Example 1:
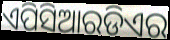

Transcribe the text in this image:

ଏପିସିଆରଡିଏର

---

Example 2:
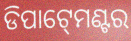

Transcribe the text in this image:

ଡିପାଟ୍‍ମେଣ୍ଟର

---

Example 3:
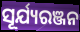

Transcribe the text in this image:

ସୂର୍ଯ୍ୟରଞ୍ଜନ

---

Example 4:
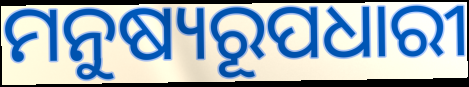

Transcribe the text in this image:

ମନୁଷ୍ୟରୂପଧାରୀ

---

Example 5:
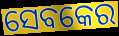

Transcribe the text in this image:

ସେବକେର